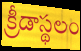
క్రీడాస్థలం